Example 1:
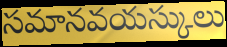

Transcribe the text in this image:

సమానవయస్కులు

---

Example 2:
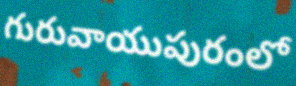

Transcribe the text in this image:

గురువాయుపురంలో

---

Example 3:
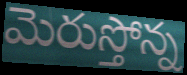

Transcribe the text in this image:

మెరుస్తోన్న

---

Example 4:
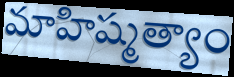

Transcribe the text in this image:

మాహిష్మత్యాం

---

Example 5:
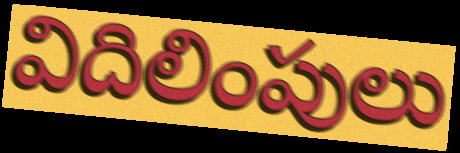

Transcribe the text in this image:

విదిలింపులు